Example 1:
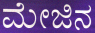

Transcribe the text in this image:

ಮೇಜಿನ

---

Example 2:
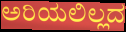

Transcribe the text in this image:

ಅರಿಯಲಿಲ್ಲದ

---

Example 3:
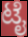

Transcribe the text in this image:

ಟೈ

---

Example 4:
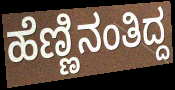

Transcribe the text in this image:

ಹೆಣ್ಣಿನಂತಿದ್ದ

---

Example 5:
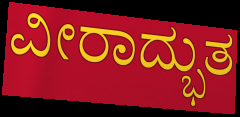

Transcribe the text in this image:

ವೀರಾದ್ಭುತ